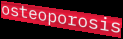
osteoporosis